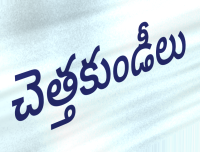
చెత్తకుండీలు